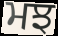
ਮਝ